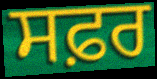
ਸਫ਼ਰ